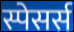
स्पेसर्स